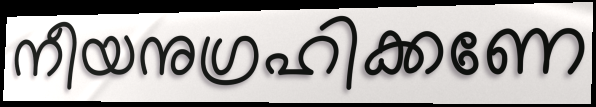
നീയനുഗ്രഹിക്കണേ